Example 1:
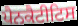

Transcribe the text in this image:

ਪੈਨਕੈਟੀਟਿਸ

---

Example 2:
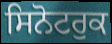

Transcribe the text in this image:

ਸਿਨੋਟਰੁਕ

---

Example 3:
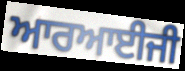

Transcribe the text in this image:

ਆਰਆਈਜੀ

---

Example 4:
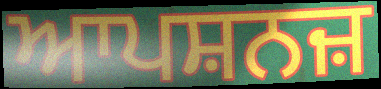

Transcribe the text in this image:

ਆਪਸ਼ਨਜ਼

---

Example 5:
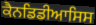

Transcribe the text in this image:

ਕੈਨਡਿਡੀਆਸਿਸ